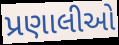
પ્રણાલીઓ